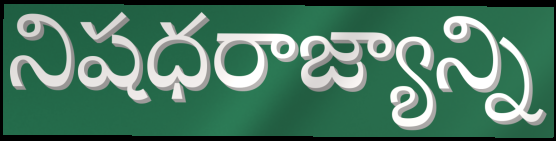
నిషధరాజ్యాన్ని